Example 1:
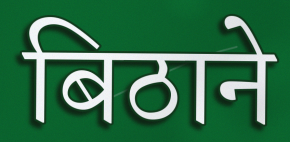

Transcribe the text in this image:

बिठाने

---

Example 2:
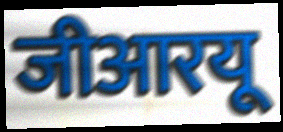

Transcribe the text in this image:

जीआरयू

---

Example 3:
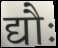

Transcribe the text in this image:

द्यौः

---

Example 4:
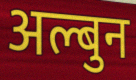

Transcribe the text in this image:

अल्बुन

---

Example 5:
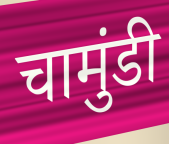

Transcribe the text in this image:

चामुंडी